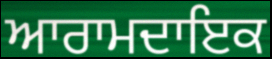
ਆਰਾਮਦਾਇਕ